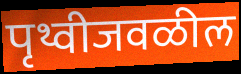
पृथ्वीजवळील